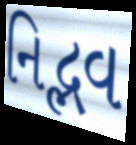
નિદ્ભવ